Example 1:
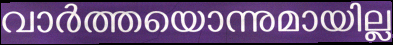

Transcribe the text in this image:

വാർത്തയൊന്നുമായില്ല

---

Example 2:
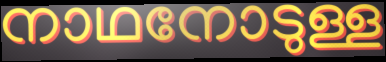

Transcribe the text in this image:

നാഥനോടുള്ള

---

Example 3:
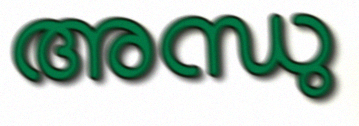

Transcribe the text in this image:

അന്ധു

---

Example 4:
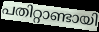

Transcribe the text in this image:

പതിറ്റാണ്ടായി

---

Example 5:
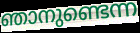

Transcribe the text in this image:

ഞാനുണ്ടെന്ന